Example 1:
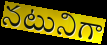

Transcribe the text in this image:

నటునిగా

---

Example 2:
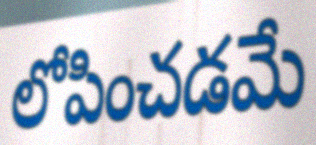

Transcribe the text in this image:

లోపించడమే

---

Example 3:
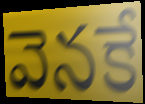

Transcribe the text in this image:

వెనకే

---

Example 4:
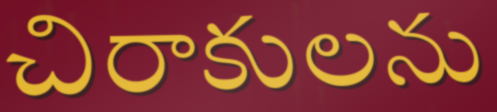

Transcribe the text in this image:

చిరాకులను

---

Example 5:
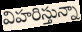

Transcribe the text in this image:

విహరిస్తున్నా